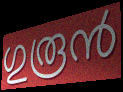
ഗുരൂൻ